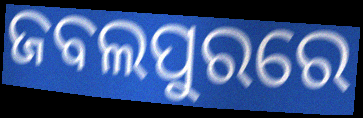
ଜବଲପୁରରେ